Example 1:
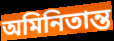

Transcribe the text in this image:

অমিনিতান্ত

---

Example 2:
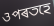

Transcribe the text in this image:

ওপৰতহে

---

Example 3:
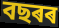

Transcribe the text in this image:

বছৰৰ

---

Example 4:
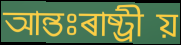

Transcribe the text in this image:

আন্তঃৰাষ্ট্ৰীয়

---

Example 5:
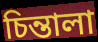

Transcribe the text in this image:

চিন্তালা